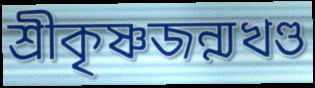
শ্রীকৃষ্ণজন্মখণ্ড